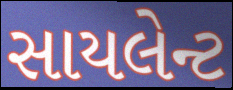
સાયલેન્ટ